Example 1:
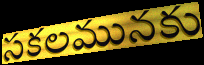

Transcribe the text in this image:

సకలమునకు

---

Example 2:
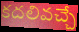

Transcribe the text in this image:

కదలివచ్చే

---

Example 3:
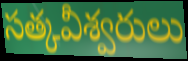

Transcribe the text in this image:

సత్కవీశ్వరులు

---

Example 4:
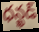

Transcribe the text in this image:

ధన్ఖడ్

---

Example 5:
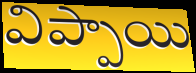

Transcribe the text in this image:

విప్పాయి